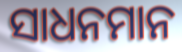
ସାଧନମାନ